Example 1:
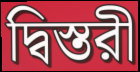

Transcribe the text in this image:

দ্বিস্তরী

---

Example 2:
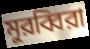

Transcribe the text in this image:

মুরব্বিরা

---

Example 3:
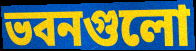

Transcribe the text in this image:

ভবনগুলো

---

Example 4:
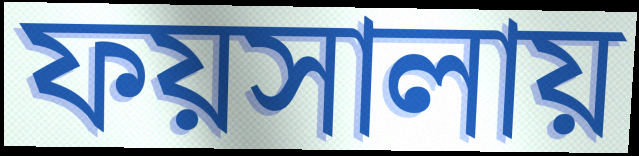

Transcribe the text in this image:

ফয়সালায়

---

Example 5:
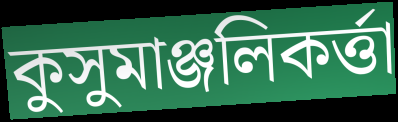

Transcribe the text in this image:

কুসুমাঞ্জলিকর্ত্তা